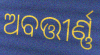
ଅବତ୍ତୀର୍ଣ୍ଣ